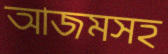
আজমসহ